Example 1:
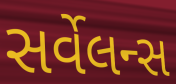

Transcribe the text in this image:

સર્વેલન્સ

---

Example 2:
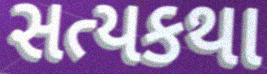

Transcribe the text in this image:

સત્યકથા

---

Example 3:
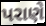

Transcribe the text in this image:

પરાણે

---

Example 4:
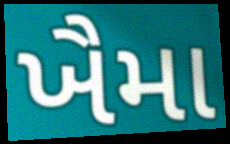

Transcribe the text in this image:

ખૈમા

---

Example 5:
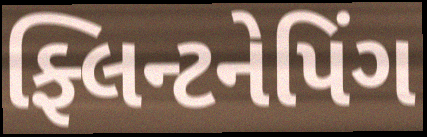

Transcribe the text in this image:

ફ્લિન્ટનેપિંગ